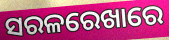
ସରଳରେଖାରେ